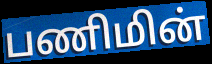
பணிமின்